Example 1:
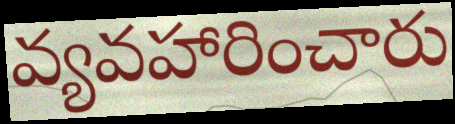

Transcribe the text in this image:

వ్యవహారించారు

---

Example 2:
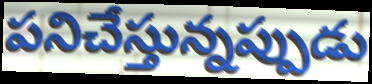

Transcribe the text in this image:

పనిచేస్తున్నప్పుడు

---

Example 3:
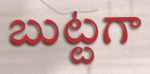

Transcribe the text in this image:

బుట్టగా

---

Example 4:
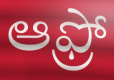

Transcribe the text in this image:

ఆఫ్రో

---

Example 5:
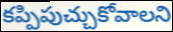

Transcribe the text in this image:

కప్పిపుచ్చుకోవాలని